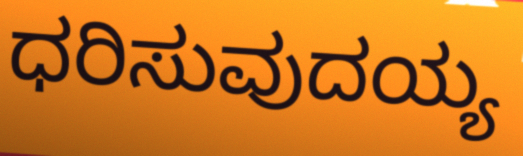
ಧರಿಸುವುದಯ್ಯ